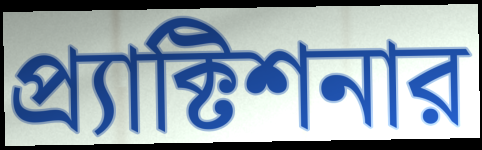
প্র্যাক্টিশনার